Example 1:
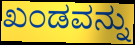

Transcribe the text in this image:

ಖಂಡವನ್ನು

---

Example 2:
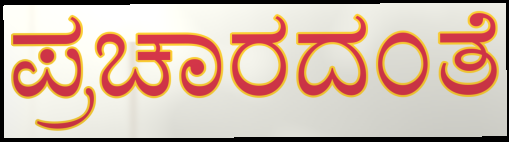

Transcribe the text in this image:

ಪ್ರಚಾರದಂತೆ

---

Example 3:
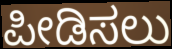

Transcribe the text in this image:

ಪೀಡಿಸಲು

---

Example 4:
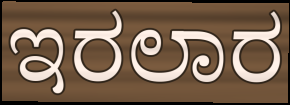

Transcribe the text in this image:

ಇರಲಾರ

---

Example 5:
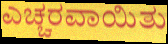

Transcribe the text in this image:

ಎಚ್ಚರವಾಯಿತು